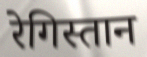
रेगिस्तान